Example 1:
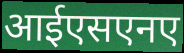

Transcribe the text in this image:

आईएसएनए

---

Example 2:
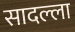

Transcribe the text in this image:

सादल्ला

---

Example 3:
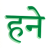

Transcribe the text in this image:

हने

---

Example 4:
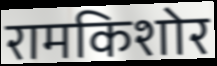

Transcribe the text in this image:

रामकिशोर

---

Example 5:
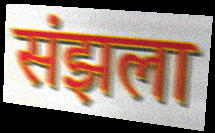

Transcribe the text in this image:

संझला